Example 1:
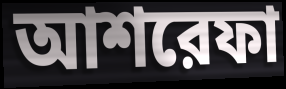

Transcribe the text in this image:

আশরেফা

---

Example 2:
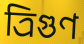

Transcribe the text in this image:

ত্রিগুণ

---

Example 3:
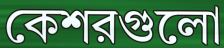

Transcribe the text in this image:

কেশরগুলো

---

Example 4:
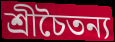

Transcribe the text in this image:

শ্রীচৈতন্য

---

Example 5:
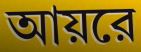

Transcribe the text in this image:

আয়রে